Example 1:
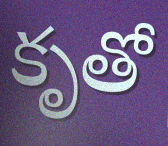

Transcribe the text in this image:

కృతో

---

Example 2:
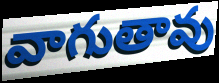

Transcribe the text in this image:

వాగుతావు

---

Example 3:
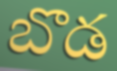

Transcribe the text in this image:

బొడ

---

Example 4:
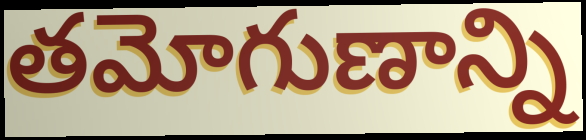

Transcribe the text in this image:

తమోగుణాన్ని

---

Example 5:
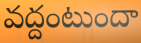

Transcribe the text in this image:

వద్దంటుందా